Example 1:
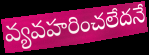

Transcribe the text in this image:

వ్యవహరించలేదనే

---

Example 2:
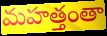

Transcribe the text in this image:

మహత్తంతా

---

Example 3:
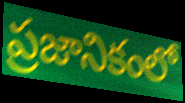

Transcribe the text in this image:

ప్రజానికంలో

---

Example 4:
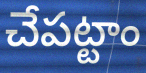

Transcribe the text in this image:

చేపట్టాం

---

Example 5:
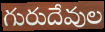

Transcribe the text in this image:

గురుదేవుల